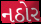
નઠોર